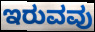
ಇರುವವು